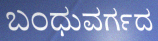
ಬಂಧುವರ್ಗದ